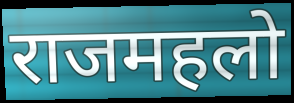
राजमहलो